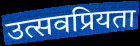
उत्सवप्रियता